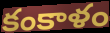
కంకాళం